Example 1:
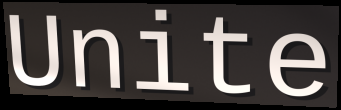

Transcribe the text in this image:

Unite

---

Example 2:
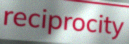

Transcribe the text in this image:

reciprocity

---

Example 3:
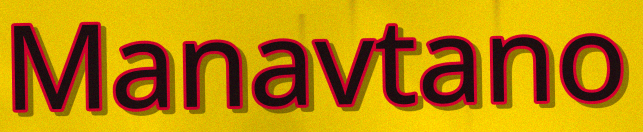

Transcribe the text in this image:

Manavtano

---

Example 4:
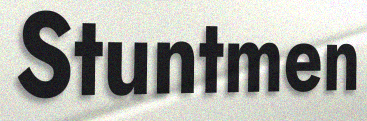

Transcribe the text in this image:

Stuntmen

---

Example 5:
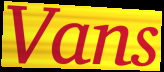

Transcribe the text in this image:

Vans